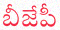
బీజేపీ